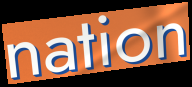
nation